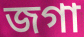
জগা